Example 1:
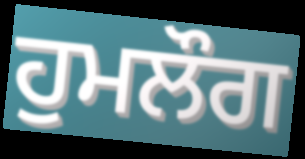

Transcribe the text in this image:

ਹੁਮਲੌਗ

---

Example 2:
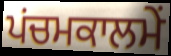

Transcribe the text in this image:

ਪਂਚਮਕਾਲਮੇਂ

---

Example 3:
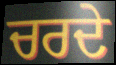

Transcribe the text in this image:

ਚਰਦੇ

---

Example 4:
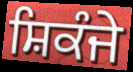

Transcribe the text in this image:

ਸ਼ਿਕੰਜੇ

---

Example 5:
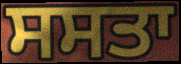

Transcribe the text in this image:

ਸਸਤਾ